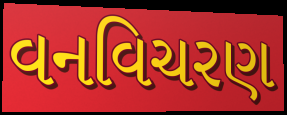
વનવિચરણ